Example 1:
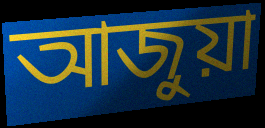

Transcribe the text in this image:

আজুয়া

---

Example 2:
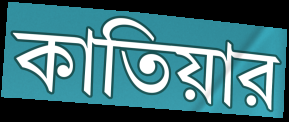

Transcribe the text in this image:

কাতিয়ার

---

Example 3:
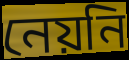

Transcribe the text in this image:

নেয়নি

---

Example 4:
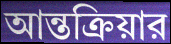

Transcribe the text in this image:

আন্তক্রিয়ার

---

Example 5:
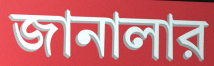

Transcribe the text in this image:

জানালার